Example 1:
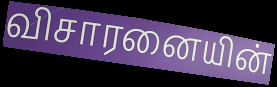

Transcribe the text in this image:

விசாரனையின்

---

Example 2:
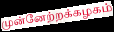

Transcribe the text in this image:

முன்னேற்றக்கழகம்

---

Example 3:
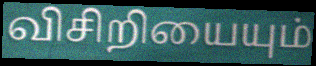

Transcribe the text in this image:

விசிறியையும்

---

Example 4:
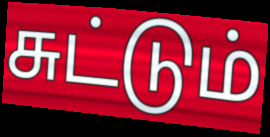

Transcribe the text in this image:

சுட்டும்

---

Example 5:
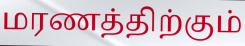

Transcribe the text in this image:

மரணத்திற்கும்